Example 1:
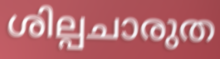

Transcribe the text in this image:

ശില്പചാരുത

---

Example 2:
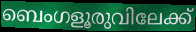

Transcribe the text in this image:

ബെംഗളൂരുവിലേക്ക്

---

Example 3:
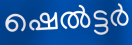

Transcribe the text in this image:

ഷെൽട്ടർ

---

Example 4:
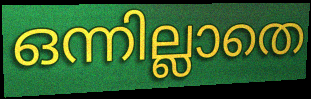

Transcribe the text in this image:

ഒന്നില്ലാതെ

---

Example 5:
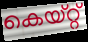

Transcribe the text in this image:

കെയ്റ്റ്